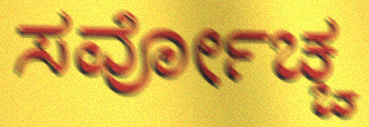
ಸರ್ವೋಚ್ಚ